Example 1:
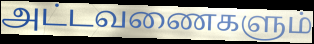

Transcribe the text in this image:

அட்டவணைகளும்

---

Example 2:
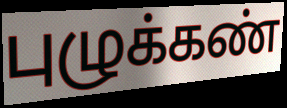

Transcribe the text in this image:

புழுக்கண்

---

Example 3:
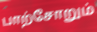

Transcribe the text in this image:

பாற்சோறும்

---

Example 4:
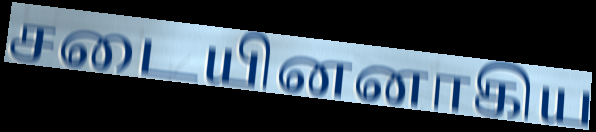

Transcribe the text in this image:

சடையினனாகிய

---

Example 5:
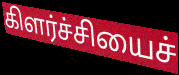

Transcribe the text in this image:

கிளர்ச்சியைச்